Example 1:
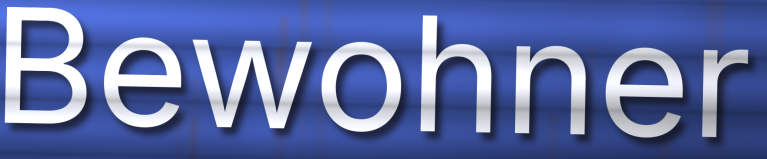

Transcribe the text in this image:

Bewohner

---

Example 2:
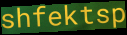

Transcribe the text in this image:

shfektsp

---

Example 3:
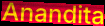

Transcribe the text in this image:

Anandita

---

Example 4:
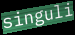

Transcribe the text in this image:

singuli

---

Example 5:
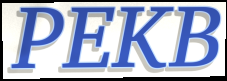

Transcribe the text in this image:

PEKB